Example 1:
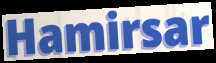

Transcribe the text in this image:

Hamirsar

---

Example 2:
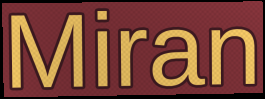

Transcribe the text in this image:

Miran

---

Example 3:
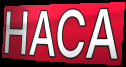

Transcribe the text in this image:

HACA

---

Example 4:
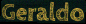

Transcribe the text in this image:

Geraldo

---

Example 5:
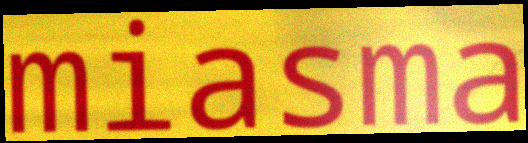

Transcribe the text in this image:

miasma